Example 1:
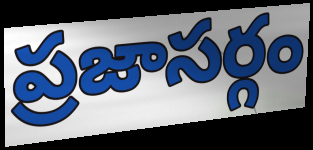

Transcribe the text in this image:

ప్రజాసర్గం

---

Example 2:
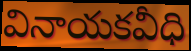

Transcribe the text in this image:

వినాయకవీధి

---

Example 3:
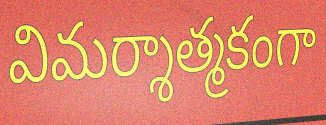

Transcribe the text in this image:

విమర్శాత్మకంగా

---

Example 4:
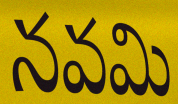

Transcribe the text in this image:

నవమి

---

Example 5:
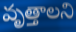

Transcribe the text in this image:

వృత్తాలని